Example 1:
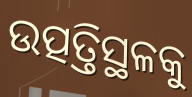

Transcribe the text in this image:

ଉତ୍ପତ୍ତିସ୍ଥଳକୁ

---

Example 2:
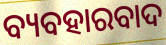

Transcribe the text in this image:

ବ୍ୟବହାରବାଦ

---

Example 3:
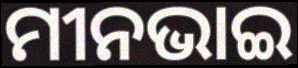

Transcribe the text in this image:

ମୀନଭାଇ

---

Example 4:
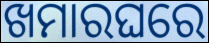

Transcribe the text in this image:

ଖମାରଘରେ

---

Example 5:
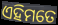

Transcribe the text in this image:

ଏହିମତେ